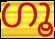
ഗൂ